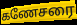
கணேசரை